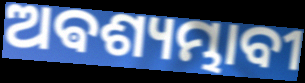
ଅଵଶ୍ୟମ୍ଭାବୀ